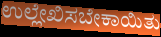
ಉಲ್ಲೇಖಿಸಬೇಕಾಯಿತು